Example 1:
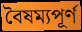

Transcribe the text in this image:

বৈষম্যপূর্ণ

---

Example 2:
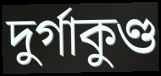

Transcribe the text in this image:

দুর্গাকুণ্ড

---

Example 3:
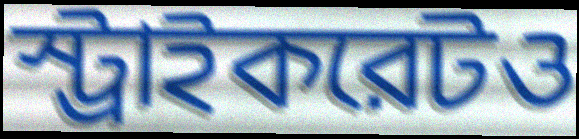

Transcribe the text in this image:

স্ট্রাইকরেটও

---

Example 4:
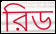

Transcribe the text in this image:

রিড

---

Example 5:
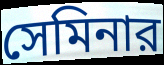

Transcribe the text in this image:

সেমিনার